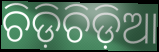
ଚିଡ଼ିଚିଡ଼ିଆ